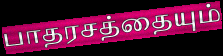
பாதரசத்தையும்